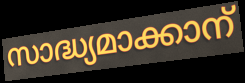
സാദ്ധ്യമാക്കാന്